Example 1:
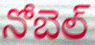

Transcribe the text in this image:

నోబెల్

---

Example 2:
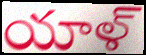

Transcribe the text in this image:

యాళ్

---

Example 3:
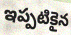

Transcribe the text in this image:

ఇప్పటికైన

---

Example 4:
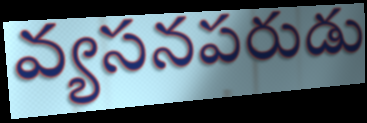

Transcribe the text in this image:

వ్యసనపరుడు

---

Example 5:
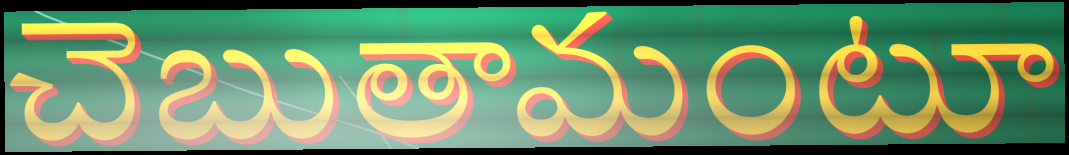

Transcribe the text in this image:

చెబుతామంటూ